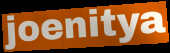
joenitya